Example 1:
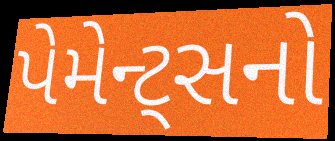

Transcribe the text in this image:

પેમેન્ટ્સનો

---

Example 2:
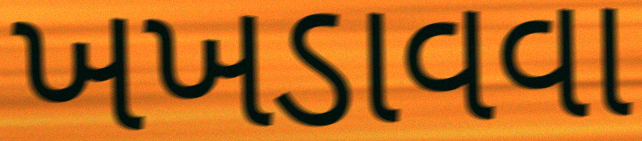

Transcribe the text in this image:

ખખડાવવા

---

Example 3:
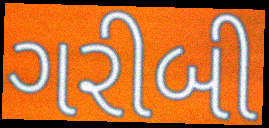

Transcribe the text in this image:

ગરીબી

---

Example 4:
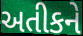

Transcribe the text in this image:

અતીકને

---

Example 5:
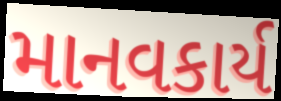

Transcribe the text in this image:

માનવકાર્ય